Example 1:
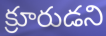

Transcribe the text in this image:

క్రూరుడని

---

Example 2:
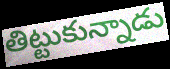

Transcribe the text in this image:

తిట్టుకున్నాడు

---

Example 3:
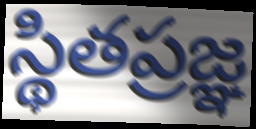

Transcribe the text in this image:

స్థితప్రజ్ఞ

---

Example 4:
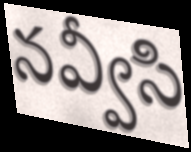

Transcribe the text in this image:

నవ్వీసి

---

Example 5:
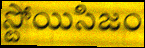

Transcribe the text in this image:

స్టోయిసిజం